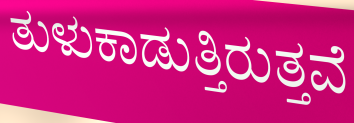
ತುಳುಕಾಡುತ್ತಿರುತ್ತವೆ